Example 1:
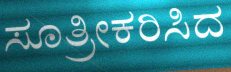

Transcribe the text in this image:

ಸೂತ್ರೀಕರಿಸಿದ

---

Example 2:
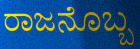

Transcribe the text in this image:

ರಾಜನೊಬ್ಬ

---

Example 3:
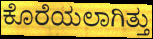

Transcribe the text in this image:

ಕೊರೆಯಲಾಗಿತ್ತು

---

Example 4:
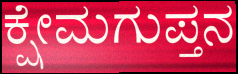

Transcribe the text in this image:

ಕ್ಷೇಮಗುಪ್ತನ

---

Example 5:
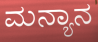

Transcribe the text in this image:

ಮನ್ಯಾನ